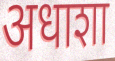
अधाशा